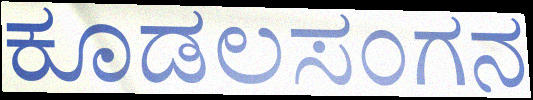
ಕೂಡಲಸಂಗನ